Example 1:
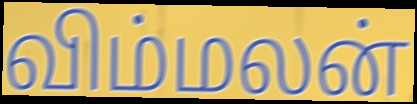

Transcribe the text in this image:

விம்மலன்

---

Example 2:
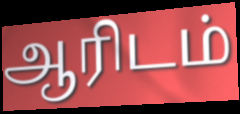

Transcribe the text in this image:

ஆரிடம்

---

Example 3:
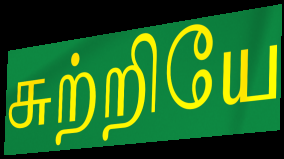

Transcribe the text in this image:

சுற்றியே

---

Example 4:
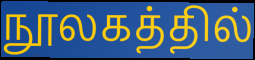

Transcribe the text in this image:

நூலகத்தில்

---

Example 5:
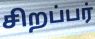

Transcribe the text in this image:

சிறப்பர்